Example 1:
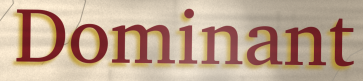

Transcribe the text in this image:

Dominant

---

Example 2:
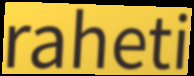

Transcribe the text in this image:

raheti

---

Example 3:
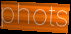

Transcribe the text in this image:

phots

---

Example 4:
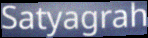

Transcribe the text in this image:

Satyagrah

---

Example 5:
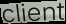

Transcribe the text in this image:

client